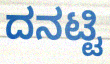
ದನಟ್ಟಿ